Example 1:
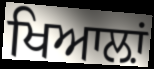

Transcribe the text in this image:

ਖਿਆਲ਼ਾਂ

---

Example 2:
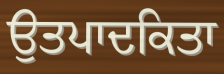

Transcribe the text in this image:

ਉਤਪਾਦਕਿਤਾ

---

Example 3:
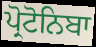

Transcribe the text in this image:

ਪ੍ਰੋਟੋਨਿਬਾ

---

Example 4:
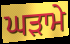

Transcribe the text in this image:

ਘੜਾਮੇ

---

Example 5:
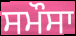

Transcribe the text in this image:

ਸਮੌਸਾ